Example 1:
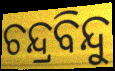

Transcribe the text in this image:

ଚନ୍ଦ୍ରବିନ୍ଦୁ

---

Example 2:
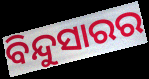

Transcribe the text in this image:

ବିନ୍ଦୁସାରର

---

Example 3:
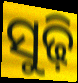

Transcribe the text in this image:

ସୁଢ଼ି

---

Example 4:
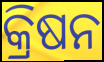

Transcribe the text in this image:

କ୍ରିଷନ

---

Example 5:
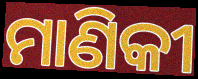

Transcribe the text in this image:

ମାଣିକୀ